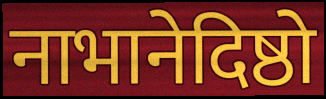
नाभानेदिष्ठो